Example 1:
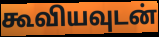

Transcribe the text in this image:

கூவியவுடன்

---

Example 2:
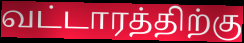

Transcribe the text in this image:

வட்டாரத்திற்கு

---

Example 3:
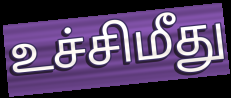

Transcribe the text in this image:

உச்சிமீது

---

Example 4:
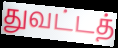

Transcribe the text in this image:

துவட்டத்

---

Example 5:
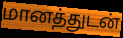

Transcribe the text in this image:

மானத்துடன்